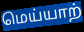
மெய்யாற்